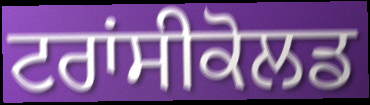
ਟਰਾਂਸੀਕੋਲਡ